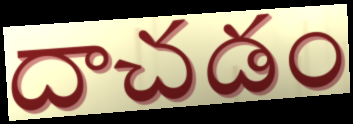
దాచడం